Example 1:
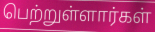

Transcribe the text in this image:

பெற்றுள்ளார்கள்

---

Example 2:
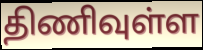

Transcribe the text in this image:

திணிவுள்ள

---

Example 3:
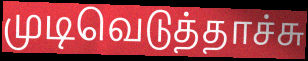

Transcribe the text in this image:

முடிவெடுத்தாச்சு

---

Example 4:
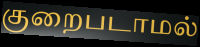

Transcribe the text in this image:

குறைபடாமல்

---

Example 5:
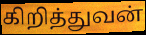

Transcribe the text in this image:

கிறித்துவன்